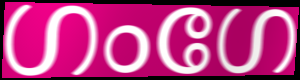
ഗംഗേ